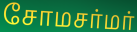
சோமசர்மர்